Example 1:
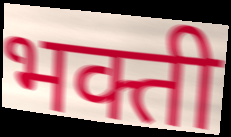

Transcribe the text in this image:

भक्ती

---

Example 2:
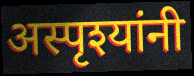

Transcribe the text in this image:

अस्पृश्यांनी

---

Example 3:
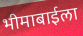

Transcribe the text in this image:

भीमाबाईला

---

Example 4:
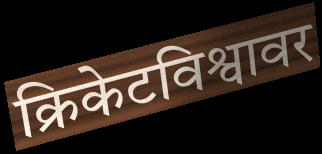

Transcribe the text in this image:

क्रिकेटविश्वावर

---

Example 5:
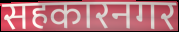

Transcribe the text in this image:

सहकारनगर